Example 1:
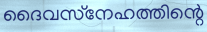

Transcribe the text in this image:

ദൈവസ്‌നേഹത്തിന്റെ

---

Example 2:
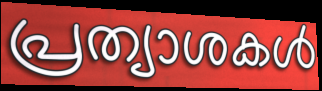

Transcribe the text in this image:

പ്രത്യാശകൾ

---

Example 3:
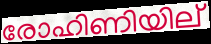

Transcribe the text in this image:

രോഹിണിയില്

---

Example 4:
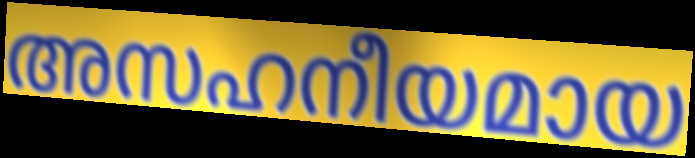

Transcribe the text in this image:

അസഹനീയമായ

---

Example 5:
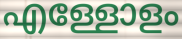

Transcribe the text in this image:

എള്ളോളം